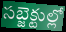
సబ్జెక్టుల్లో